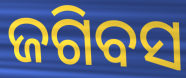
ଜଗିବସ